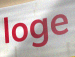
loge